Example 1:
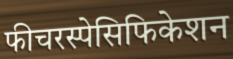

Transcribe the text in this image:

फीचरस्पेसिफिकेशन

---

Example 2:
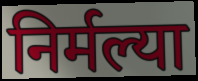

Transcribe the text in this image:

निर्मल्या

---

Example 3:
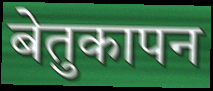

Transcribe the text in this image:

बेतुकापन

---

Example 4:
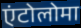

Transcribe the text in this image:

एंटोलोमा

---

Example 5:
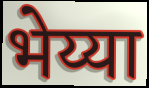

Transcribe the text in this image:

भेय्या